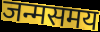
जन्मसमय